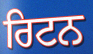
ਰਿਟਨ